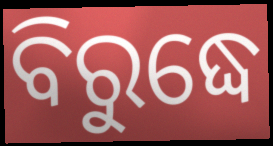
ବିରୁଦ୍ଧେ